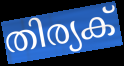
തിര്യക്